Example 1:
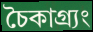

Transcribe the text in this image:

চৈকাগ্র্যং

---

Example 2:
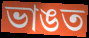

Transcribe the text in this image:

ভাঙত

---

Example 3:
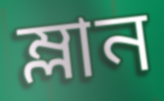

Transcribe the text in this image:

ম্লান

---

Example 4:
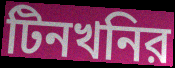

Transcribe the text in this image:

টিনখনির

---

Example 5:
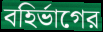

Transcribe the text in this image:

বহির্ভাগের